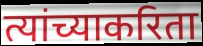
त्यांच्याकरिता